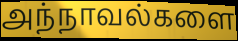
அந்நாவல்களை